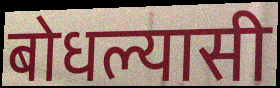
बोधल्यासी